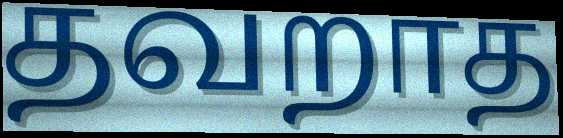
தவறாத